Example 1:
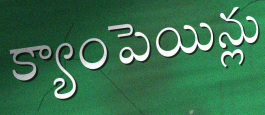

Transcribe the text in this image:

క్యాంపెయిన్లు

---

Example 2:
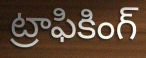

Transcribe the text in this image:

ట్రాఫికింగ్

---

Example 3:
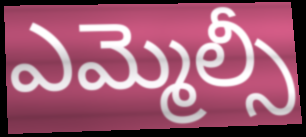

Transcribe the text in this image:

ఎమ్మెల్సీ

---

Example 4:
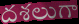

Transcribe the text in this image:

దశలుగా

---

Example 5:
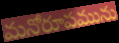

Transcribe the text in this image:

మనోరూపమును